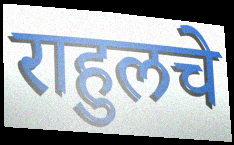
राहुलचे